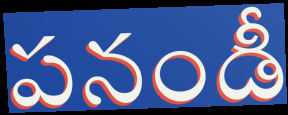
పనండీ